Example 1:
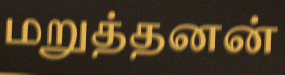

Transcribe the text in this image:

மறுத்தனன்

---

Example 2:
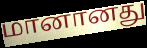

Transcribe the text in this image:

மானானது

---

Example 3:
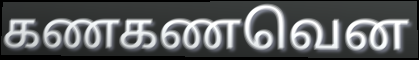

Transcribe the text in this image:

கணகணவென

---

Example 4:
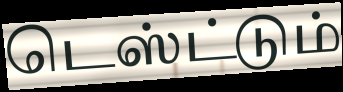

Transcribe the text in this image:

டெஸ்ட்டும்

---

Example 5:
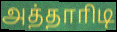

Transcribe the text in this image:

அத்தாரிடி